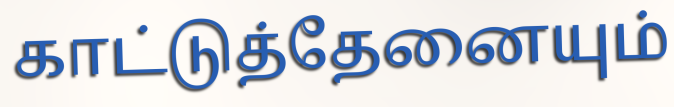
காட்டுத்தேனையும்